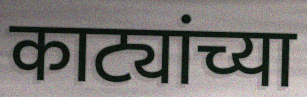
काट्यांच्या